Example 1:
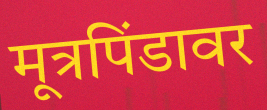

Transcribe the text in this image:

मूत्रपिंडावर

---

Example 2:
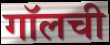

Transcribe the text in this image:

गॉलची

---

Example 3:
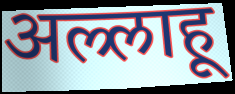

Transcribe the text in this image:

अल्लाहू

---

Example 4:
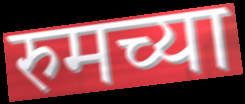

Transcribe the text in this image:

रुमच्या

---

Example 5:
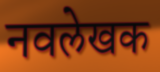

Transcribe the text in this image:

नवलेखक